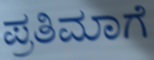
ಪ್ರತಿಮಾಗೆ